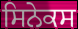
ਸਿਨੇਕਸ